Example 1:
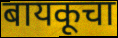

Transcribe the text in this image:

बायकूचा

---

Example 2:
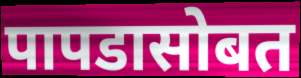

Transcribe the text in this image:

पापडासोबत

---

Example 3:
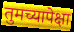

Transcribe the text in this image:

तुमच्यापेक्षा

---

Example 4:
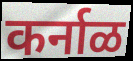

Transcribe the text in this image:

कर्नाळ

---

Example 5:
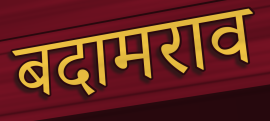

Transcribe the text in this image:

बदामराव